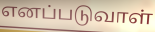
எனப்படுவாள்